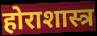
होराशास्त्र